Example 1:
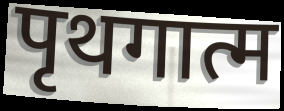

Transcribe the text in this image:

पृथगात्म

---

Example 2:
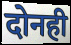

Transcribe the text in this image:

दोनही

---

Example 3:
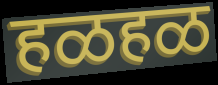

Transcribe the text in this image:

हळहळ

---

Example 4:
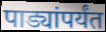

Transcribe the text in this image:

पाड्यांपर्यंत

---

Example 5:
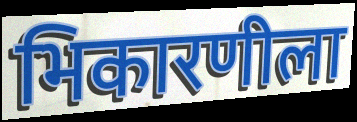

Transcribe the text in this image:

भिकारणीला